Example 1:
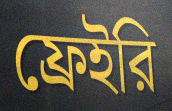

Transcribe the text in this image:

ফ্রেইরি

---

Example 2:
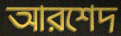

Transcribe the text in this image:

আরশেদ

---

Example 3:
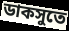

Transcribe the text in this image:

ডাকসুতে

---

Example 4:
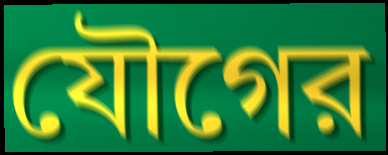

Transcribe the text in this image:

যৌগের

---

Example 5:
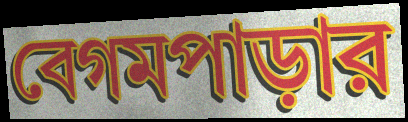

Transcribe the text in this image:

বেগমপাড়ার